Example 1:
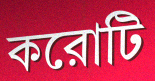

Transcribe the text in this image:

করোটি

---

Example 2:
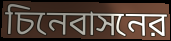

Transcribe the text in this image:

চিনেবাসনের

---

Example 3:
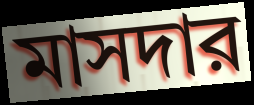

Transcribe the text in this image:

মাসদার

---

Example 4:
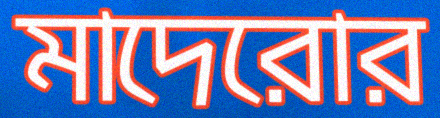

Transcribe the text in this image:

মাদেরোর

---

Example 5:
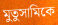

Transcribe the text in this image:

মুতুসামিকে